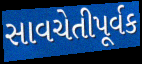
સાવચેતીપૂર્વક